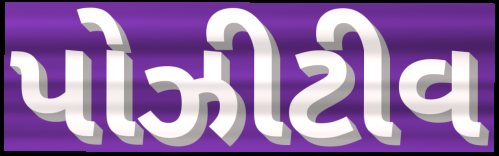
પોઝીટીવ